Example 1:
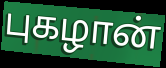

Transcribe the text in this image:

புகழான்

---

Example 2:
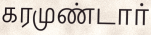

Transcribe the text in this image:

கரமுண்டார்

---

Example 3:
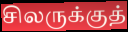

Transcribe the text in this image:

சிலருக்குத்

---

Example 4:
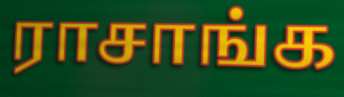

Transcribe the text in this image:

ராசாங்க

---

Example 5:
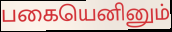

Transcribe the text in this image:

பகையெனினும்